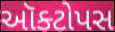
ઑક્ટોપસ